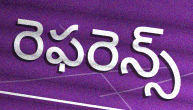
రెఫరెన్స్